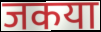
जकया